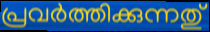
പ്രവർത്തിക്കുന്നതു്